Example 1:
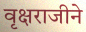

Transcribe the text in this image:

वृक्षराजीने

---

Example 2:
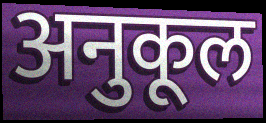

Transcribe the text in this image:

अनुकूल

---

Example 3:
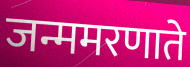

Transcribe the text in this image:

जन्ममरणाते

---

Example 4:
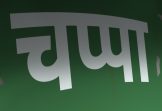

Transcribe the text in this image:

चप्पा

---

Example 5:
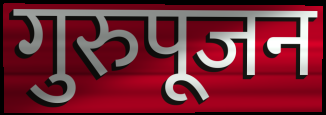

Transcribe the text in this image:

गुरुपूजन